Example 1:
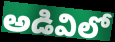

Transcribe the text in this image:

అడివిలో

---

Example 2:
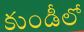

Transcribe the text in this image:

కుండీలో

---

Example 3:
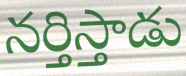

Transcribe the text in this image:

నర్తిస్తాడు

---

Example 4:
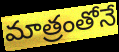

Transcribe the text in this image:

మాత్రంతోనే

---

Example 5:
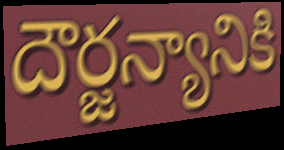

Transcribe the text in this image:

దౌర్జన్యానికి